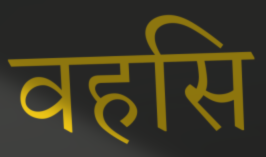
वहसि